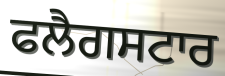
ਫਲੈਗਸਟਾਰ